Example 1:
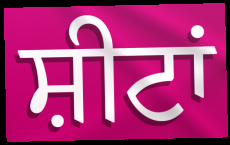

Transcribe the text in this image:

ਸ਼ੀਟਾਂ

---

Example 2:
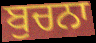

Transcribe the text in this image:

ਬੁਚਨਾ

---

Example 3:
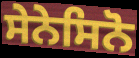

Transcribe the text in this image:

ਸੇਨੇਸਿਨੋ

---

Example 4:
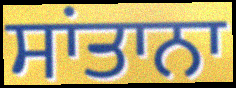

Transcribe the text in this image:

ਸਾਂਤਾਨਾ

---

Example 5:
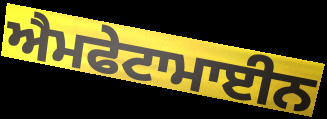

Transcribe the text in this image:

ਐਮਫੇਟਾਮਾਈਨ